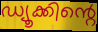
ഡ്യൂക്കിന്റെ